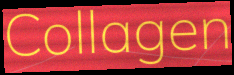
Collagen